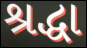
શ્રદ્ધા